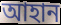
আহান